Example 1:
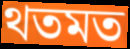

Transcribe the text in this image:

থতমত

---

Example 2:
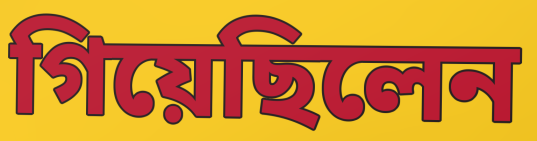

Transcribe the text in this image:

গিয়েছিলেন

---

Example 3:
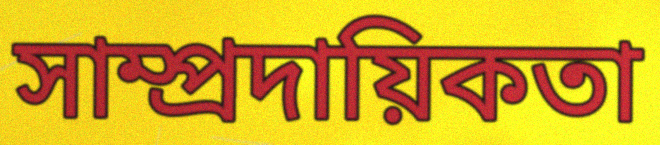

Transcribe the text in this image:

সাম্প্রদায়িকতা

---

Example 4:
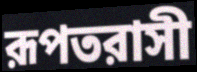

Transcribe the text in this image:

রূপতরাসী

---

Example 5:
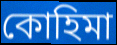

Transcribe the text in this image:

কোহিমা